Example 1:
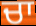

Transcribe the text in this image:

ਚਾ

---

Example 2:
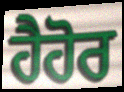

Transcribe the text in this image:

ਹੈਹੋਰ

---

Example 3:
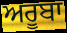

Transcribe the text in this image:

ਅਰੂਬਾ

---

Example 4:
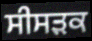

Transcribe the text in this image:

ਸੀਸੜਕ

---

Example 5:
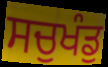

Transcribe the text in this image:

ਸਚੁਖੰਡੁ